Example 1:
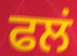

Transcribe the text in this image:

ਫਲਂ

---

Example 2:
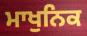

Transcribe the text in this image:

ਮਾਖੁਨਿਕ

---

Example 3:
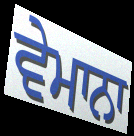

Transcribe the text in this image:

ਵੇਮਾਨਾ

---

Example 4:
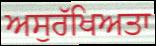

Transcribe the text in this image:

ਅਸੁਰੱਖਿਅਤਾ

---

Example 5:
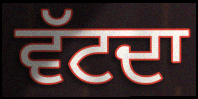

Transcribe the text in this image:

ਵੱਟਦਾ